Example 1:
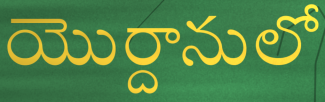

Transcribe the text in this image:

యొర్దానులో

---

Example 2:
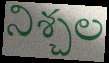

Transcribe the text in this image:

నిశ్చల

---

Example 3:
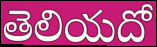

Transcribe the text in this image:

తెలియదో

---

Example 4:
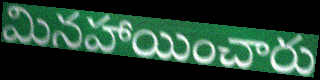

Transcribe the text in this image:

మినహాయించారు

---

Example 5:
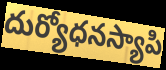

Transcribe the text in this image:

దుర్యోధనస్యాపి